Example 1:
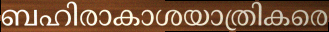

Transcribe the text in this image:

ബഹിരാകാശയാത്രികരെ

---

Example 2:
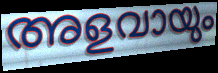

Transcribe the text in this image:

അളവായും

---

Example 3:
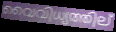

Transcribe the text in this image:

വൈവിധ്യത്തില്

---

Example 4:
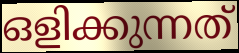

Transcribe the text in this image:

ഒളിക്കുന്നത്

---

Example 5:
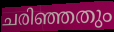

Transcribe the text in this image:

ചരിഞ്ഞതും